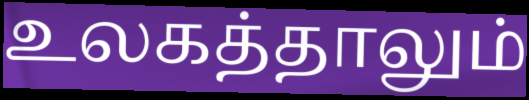
உலகத்தாலும்